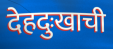
देहदुःखाची